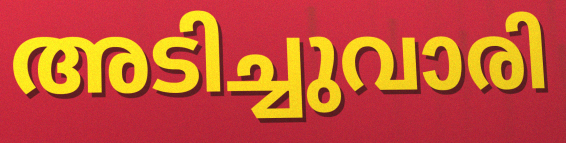
അടിച്ചുവാരി